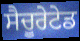
ਸੈਚੂਰੇਟੇਡ